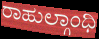
ರಾಹುಲ್ಗಾಂಧಿ